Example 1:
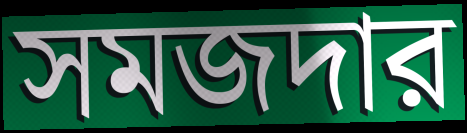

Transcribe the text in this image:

সমজদার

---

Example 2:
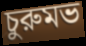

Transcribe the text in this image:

চুরুমভ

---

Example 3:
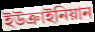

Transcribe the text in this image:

ইউক্রাইনিয়ান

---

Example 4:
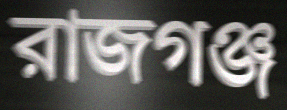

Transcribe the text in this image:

রাজগঞ্জ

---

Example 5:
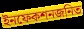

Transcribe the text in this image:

ইনফেকশনজনিত